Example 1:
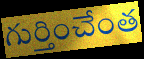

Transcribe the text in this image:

గుర్తించేంత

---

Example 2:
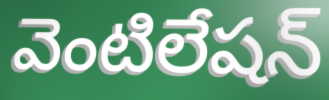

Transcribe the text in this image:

వెంటిలేషన్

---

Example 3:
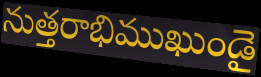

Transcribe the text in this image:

నుత్తరాభిముఖుండై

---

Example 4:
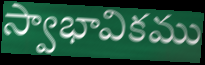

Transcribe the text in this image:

స్వాభావికము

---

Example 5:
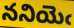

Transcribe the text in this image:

ననియెఁ